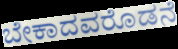
ಬೇಕಾದವರೊಡನೆ